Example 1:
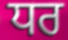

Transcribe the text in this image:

ਧਰ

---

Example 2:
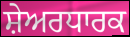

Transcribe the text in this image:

ਸ਼ੇਅਰਧਾਰਕ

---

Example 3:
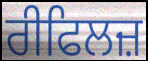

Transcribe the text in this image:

ਰੀਫਿਲਜ਼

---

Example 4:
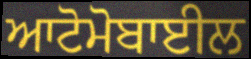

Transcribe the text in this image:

ਆਟੋਮੋਬਾਈਲ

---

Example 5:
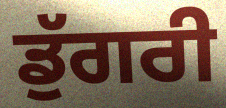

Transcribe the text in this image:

ਡੁੱਗਰੀ